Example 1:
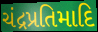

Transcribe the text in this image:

ચંદ્રપ્રતિમાદિ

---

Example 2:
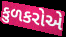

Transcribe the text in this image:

કુળકરોએ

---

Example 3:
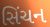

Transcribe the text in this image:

સિંચન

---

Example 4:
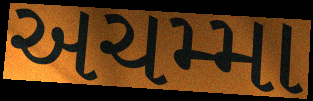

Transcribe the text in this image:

અચમ્મા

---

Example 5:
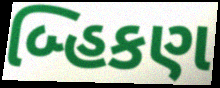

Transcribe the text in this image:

બ્હિકણ